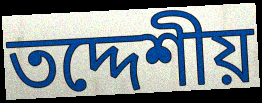
তদ্দেশীয়